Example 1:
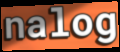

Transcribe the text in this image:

nalog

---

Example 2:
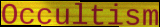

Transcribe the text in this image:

Occultism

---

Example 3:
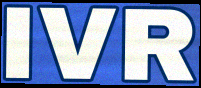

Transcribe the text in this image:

IVR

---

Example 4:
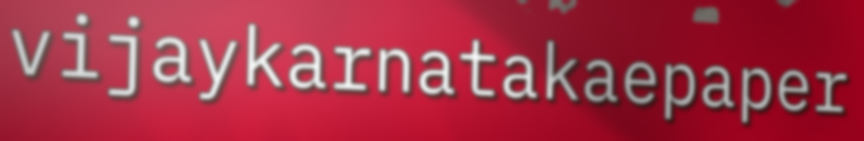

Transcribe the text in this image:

vijaykarnatakaepaper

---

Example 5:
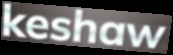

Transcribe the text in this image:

keshaw